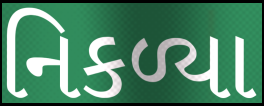
નિકળ્યા